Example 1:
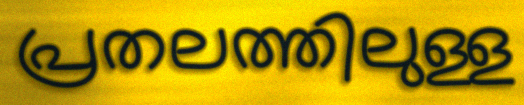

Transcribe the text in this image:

പ്രതലത്തിലുള്ള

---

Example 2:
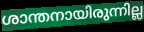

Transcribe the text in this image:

ശാന്തനായിരുന്നില്ല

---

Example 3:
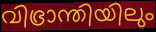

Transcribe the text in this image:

വിഭ്രാന്തിയിലും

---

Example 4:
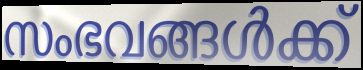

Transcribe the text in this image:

സംഭവങ്ങൾക്ക്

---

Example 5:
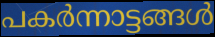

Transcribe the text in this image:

പകർന്നാട്ടങ്ങൾ